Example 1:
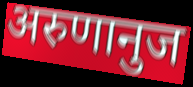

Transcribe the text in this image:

अरुणानुज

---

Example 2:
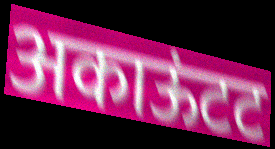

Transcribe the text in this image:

अकाऊंटट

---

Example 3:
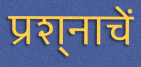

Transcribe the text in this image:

प्रश्नाचें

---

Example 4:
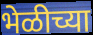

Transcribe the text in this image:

भेळीच्या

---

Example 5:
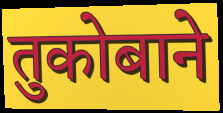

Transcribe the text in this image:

तुकोबाने